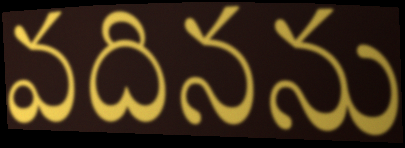
వదినను